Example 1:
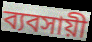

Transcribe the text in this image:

ব্যবসায়ী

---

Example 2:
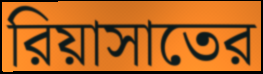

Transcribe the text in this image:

রিয়াসাতের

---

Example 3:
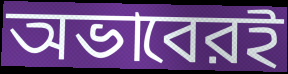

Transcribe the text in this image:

অভাবেরই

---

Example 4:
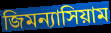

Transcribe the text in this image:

জিমন্যাসিয়াম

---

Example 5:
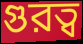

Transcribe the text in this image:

গুরত্ব